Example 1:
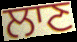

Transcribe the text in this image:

ਲਾਣ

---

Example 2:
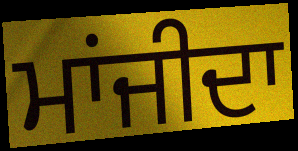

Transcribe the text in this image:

ਮਾਂਜੀਦਾ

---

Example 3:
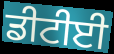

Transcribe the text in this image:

ਡੀਟੀਈ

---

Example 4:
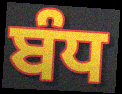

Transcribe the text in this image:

ਬੰਧ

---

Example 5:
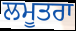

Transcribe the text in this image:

ਲਮੂਤਰਾ